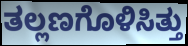
ತಲ್ಲಣಗೊಳಿಸಿತ್ತು